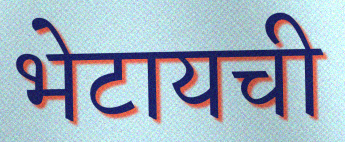
भेटायची